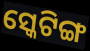
ସ୍କେଟିଙ୍ଗ